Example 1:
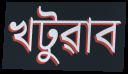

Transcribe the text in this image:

খটুৱাব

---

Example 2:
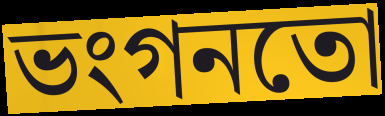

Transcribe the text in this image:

ভংগনতো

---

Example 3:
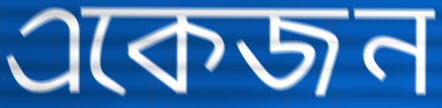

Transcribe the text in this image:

একেজন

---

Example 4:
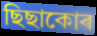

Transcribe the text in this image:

ছিছাকোৰ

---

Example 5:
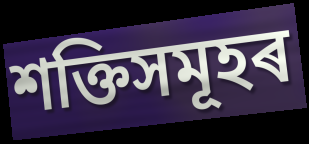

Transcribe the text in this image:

শক্তিসমূহৰ